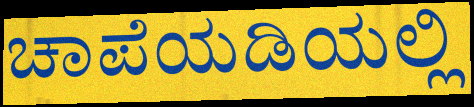
ಚಾಪೆಯಡಿಯಲ್ಲಿ